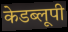
केडब्लूपी